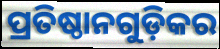
ପ୍ରତିଷ୍ଠାନଗୁଡ଼ିକର